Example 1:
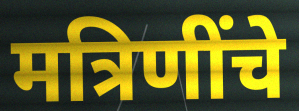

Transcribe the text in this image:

मत्रिणींचे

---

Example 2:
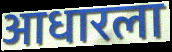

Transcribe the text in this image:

आधारला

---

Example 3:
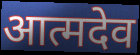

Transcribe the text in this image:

आत्मदेव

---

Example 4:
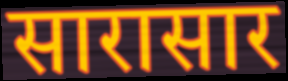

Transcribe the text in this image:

सारासार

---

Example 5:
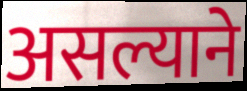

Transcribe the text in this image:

असल्याने